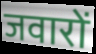
जवारों